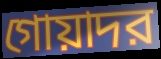
গোয়াদর